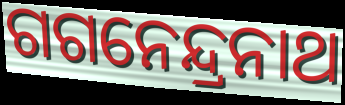
ଗଗନେନ୍ଦ୍ରନାଥ